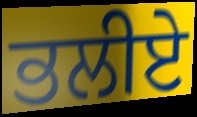
ਭਲੀਏ